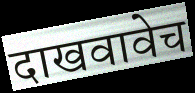
दाखवावेच